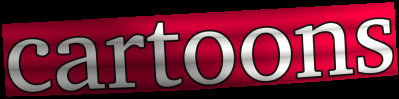
cartoons